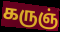
கருஞ்